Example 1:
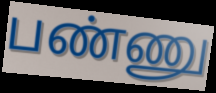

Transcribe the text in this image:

பண்ணு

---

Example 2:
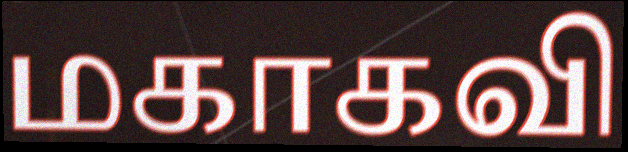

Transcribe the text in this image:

மகாகவி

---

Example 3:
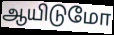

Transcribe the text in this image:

ஆயிடுமோ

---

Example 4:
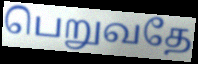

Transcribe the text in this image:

பெறுவதே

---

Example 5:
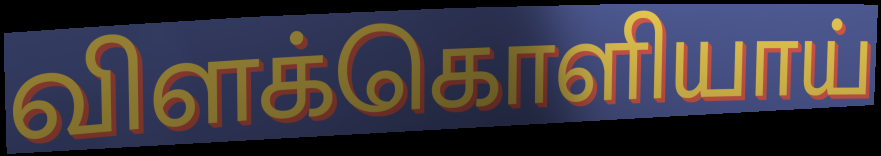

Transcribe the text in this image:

விளக்கொளியாய்